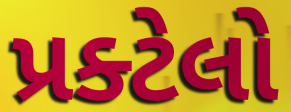
પ્રક્ટેલો